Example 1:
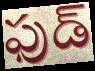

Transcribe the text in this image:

ఫుడ్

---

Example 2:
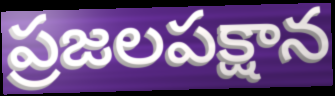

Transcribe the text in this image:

ప్రజలపక్షాన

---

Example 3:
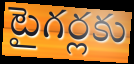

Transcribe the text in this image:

టైగర్లకు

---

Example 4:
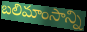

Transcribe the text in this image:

బలిమాంసాన్ని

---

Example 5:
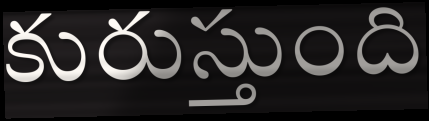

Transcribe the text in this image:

కురుస్తుంది